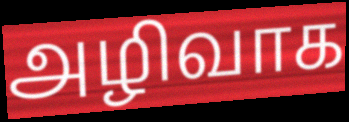
அழிவாக